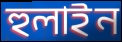
হুলাইন